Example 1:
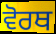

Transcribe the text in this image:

ਵੋਰਥ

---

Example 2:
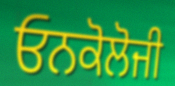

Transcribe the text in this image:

ਓਨਕੋਲੋਜੀ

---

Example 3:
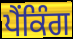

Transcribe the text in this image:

ਪੈਂਕਿੰਗ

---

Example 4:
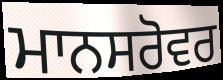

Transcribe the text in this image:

ਮਾਨਸਰੋਵਰ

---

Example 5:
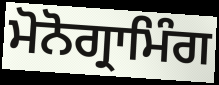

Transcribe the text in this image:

ਮੋਨੋਗ੍ਰਾਮਿੰਗ